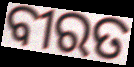
ବୀରତ